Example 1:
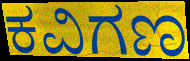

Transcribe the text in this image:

ಕವಿಗಣ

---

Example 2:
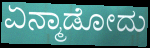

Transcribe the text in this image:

ಏನ್ಮಾಡೋದು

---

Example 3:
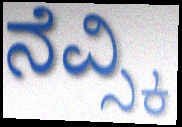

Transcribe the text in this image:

ನೆವ್ಸ್ಕಿ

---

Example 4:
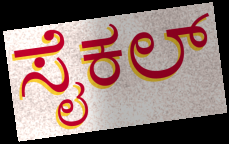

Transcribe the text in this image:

ಸೈಕಲ್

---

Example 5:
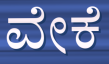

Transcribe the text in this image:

ವೇಕೆ